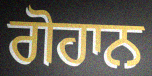
ਗੋਹਾਨ